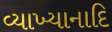
વ્યાખ્યાનાદિ